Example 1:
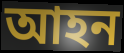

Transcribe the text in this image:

আহন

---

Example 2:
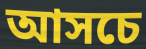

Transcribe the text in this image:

আসচে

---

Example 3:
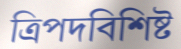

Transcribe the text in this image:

ত্রিপদবিশিষ্ট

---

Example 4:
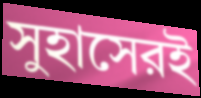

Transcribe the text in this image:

সুহাসেরই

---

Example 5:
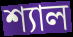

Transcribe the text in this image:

শ্যাল